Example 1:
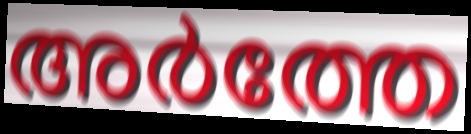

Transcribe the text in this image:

അർത്തേ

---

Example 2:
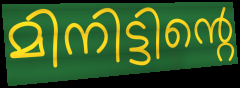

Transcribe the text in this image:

മിനിട്ടിന്റെ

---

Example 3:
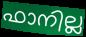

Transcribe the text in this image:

ഫാനില്ല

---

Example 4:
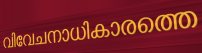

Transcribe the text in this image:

വിവേചനാധികാരത്തെ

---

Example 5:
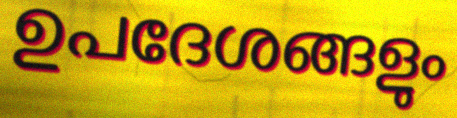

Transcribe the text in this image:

ഉപദേശങ്ങളും